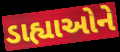
ડાહ્યાઓને